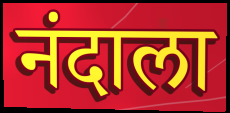
नंदाला